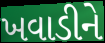
ખવાડીને